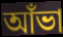
আঁভা